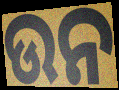
ଉନ